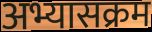
अभ्यासक्रम